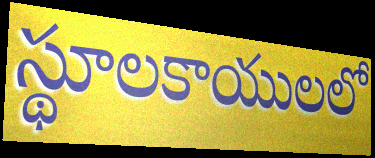
స్థూలకాయులలో